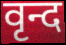
वृन्द